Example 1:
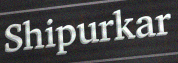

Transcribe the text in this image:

Shipurkar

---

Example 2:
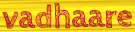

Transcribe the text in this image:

vadhaare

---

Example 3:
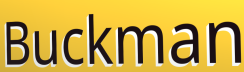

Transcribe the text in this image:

Buckman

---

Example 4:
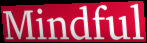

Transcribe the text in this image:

Mindful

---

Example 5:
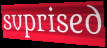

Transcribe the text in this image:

suprised